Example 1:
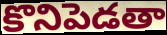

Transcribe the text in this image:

కొనిపెడతా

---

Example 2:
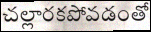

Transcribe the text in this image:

చల్లారకపోవడంతో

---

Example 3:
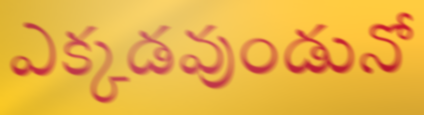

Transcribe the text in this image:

ఎక్కడవుండునో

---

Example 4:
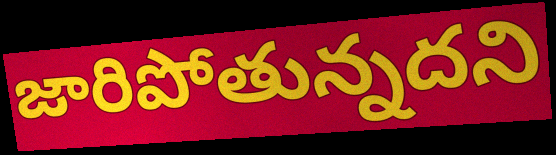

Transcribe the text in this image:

జారిపోతున్నదని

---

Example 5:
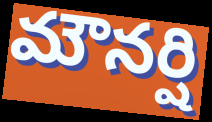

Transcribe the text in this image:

మౌనర్షి